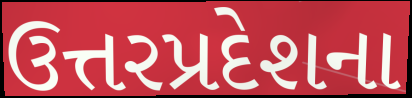
ઉત્તરપ્રદેશના